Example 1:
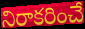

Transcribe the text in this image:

నిరాకరించే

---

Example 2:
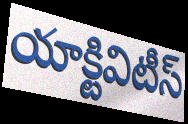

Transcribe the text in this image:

యాక్టివిటీస్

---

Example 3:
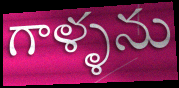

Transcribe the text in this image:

గాళ్ళను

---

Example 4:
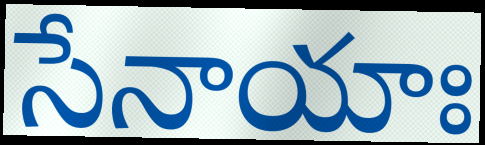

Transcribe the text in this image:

సేనాయాః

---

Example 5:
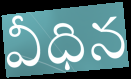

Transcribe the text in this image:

వీధిన